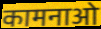
कामनाओ